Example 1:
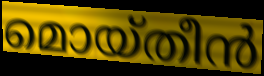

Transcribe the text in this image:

മൊയ്തീൻ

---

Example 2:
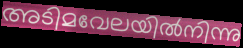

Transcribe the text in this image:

അടിമവേലയിൽനിന്നു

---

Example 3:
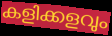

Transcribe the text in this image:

കളിക്കളവും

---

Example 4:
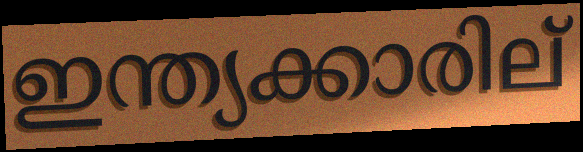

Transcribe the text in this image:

ഇന്ത്യക്കാരില്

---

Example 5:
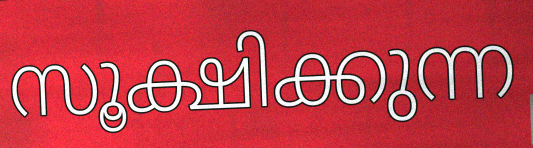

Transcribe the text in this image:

സൂക്ഷിക്കുന്ന